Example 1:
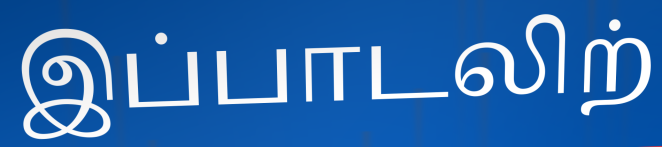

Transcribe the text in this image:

இப்பாடலிற்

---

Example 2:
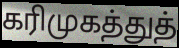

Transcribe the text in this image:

கரிமுகத்துத்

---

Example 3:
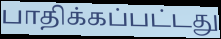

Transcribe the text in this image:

பாதிக்கப்பட்டது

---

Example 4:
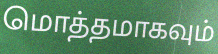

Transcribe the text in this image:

மொத்தமாகவும்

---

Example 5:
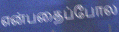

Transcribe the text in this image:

என்பதைப்போல